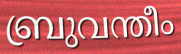
ബ്രുവന്തീം